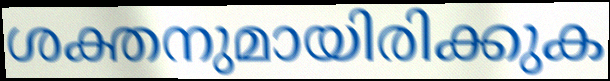
ശക്തനുമായിരിക്കുക